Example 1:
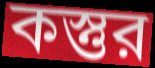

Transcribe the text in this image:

কস্তুর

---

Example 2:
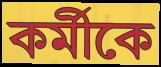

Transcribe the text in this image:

কর্মীকে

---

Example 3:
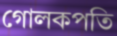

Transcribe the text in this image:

গোলকপতি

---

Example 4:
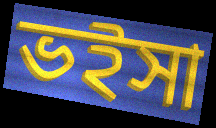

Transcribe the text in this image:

ভইসা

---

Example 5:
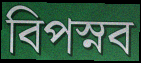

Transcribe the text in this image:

বিপস্নব